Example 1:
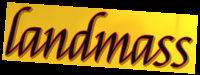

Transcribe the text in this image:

landmass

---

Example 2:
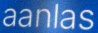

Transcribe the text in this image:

aanlas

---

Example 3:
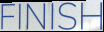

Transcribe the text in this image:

FINISH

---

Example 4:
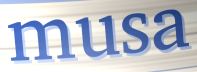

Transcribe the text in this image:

musa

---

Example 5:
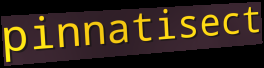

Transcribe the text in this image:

pinnatisect